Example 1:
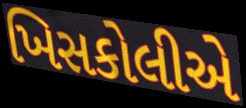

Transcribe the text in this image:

ખિસકોલીએ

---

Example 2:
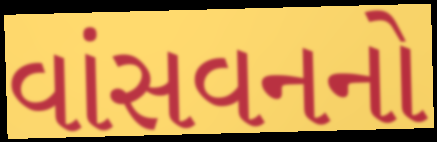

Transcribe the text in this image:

વાંસવનનો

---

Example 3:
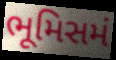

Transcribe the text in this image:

ભૂમિસમં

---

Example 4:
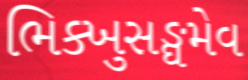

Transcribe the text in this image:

ભિક્ખુસઙ્ઘમેવ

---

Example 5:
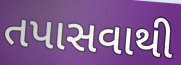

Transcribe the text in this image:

તપાસવાથી